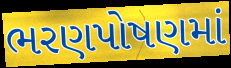
ભરણપોષણમાં